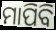
ମାପିବି